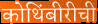
कोथिंबीरीची